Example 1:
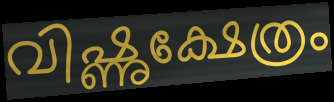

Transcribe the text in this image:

വിഷ്ണുക്ഷേത്രം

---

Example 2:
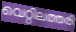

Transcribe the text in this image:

വെറ്റിലത്തരി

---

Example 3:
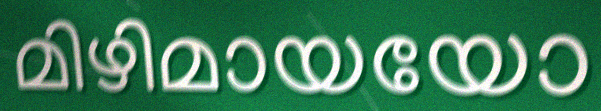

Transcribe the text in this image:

മിഴിമായയോ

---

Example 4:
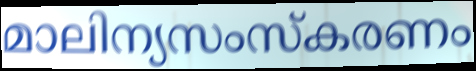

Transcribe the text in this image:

മാലിന്യസംസ്കരണം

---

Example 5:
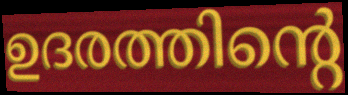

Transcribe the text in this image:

ഉദരത്തിന്റെ